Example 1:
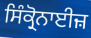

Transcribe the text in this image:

ਸਿੰਕ੍ਰੋਨਾਈਜ਼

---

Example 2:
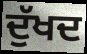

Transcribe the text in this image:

ਦੁੱਖਦ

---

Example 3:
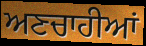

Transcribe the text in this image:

ਅਣਚਾਹੀਆਂ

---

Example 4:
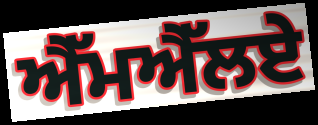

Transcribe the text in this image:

ਐੱਮਐੱਲਏ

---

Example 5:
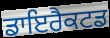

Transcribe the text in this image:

ਡਾਇਰੈਕਟਡ